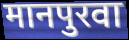
मानपुरवा